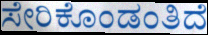
ಸೇರಿಕೊಂಡಂತಿದೆ